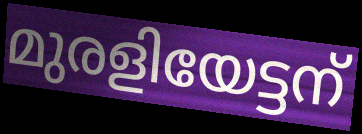
മുരളിയേട്ടന്